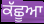
ਕੱਛੂਆ